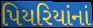
પિયરિયાંનાં